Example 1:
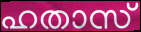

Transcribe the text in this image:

ഹതാസ്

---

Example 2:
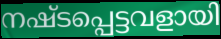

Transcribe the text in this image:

നഷ്ടപ്പെട്ടവളായി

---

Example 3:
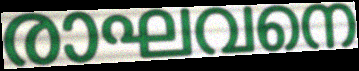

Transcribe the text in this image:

രാഘവനെ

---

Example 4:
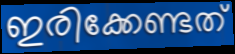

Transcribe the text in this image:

ഇരിക്കേണ്ടത്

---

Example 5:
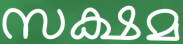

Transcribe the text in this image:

സക്ഷമ